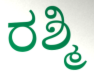
ರಶ್ಮಿ